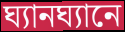
ঘ্যানঘ্যানে